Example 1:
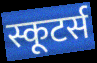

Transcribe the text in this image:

स्कूटर्स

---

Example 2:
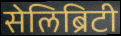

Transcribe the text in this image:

सेलिब्रिटी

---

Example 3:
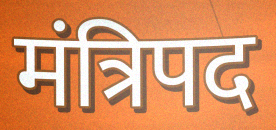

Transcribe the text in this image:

मंत्रिपद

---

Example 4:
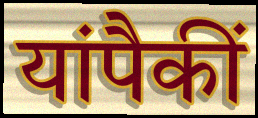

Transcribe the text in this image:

यांपैकीं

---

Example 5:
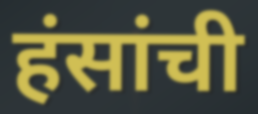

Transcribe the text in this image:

हंसांची